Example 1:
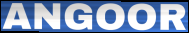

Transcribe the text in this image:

ANGOOR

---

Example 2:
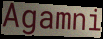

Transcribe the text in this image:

Agamni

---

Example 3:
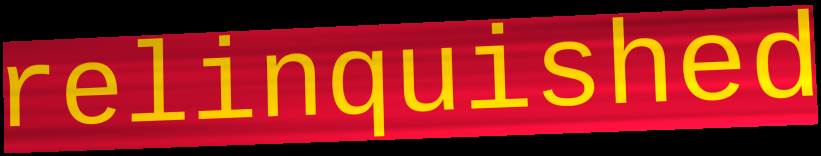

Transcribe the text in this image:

relinquished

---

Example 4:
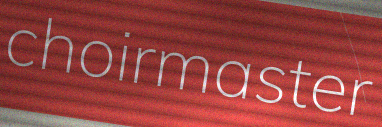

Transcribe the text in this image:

choirmaster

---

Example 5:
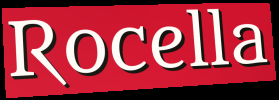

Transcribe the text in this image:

Rocella